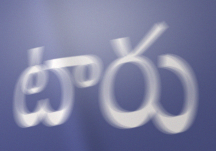
టారు